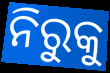
ନିରୁକୁ